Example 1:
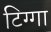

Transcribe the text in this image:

टिग्गा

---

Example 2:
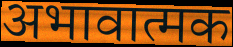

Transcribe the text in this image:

अभावात्मक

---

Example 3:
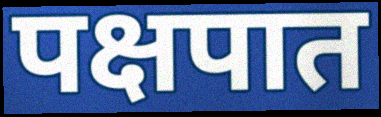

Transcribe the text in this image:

पक्षपात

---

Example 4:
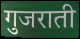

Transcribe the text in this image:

गुजराती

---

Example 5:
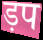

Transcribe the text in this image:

ड़प